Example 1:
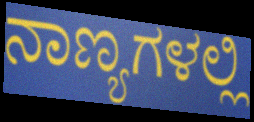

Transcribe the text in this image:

ನಾಣ್ಯಗಳಲ್ಲಿ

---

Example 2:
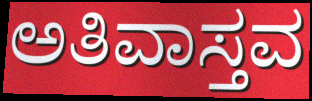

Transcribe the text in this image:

ಅತಿವಾಸ್ತವ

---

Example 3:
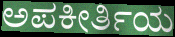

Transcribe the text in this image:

ಅಪಕೀರ್ತಿಯ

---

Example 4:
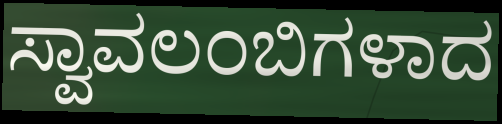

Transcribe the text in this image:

ಸ್ವಾವಲಂಬಿಗಳಾದ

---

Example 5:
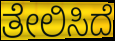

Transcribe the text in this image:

ತೇಲಿಸಿದೆ